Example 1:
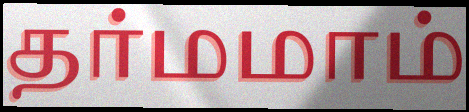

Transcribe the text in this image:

தர்மமாம்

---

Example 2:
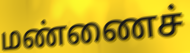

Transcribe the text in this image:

மண்ணைச்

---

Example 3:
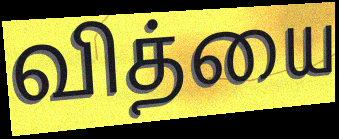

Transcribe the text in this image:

வித்யை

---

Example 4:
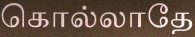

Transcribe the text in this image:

கொல்லாதே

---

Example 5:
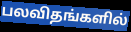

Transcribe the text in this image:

பலவிதங்களில்